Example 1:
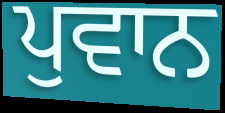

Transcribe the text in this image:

ਪੁਵਾਨ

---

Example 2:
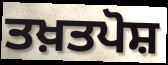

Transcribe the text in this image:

ਤਖ਼ਤਪੋਸ਼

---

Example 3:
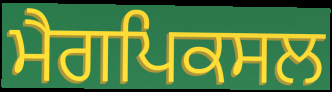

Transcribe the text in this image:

ਮੈਗਪਿਕਸਲ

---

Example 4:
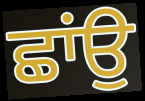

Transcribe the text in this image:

ਛਾਂਉ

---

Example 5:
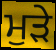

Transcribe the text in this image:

ਮੁੜੇ